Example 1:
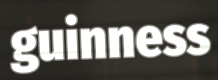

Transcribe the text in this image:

guinness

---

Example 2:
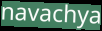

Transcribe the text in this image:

navachya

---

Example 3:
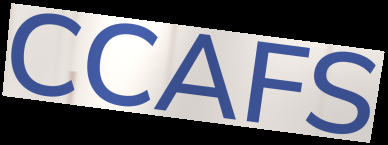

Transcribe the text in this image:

CCAFS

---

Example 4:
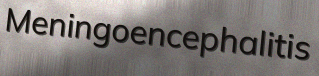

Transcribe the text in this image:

Meningoencephalitis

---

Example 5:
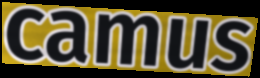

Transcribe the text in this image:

camus